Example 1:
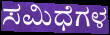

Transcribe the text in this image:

ಸಮಿಧೆಗಳ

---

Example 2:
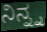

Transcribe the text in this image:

ನಿನ್ನ್ನ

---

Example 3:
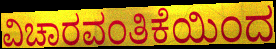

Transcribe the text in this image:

ವಿಚಾರವಂತಿಕೆಯಿಂದ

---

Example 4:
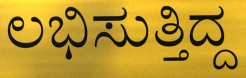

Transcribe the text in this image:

ಲಭಿಸುತ್ತಿದ್ದ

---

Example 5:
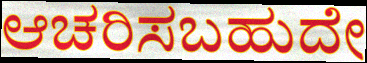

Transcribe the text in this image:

ಆಚರಿಸಬಹುದೇ